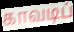
காவடிப்